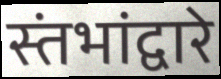
स्तंभांद्वारे